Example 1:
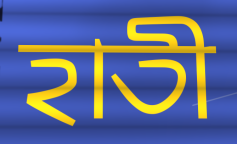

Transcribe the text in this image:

হাতী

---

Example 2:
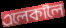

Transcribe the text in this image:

এলেকালৈ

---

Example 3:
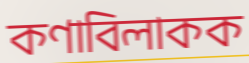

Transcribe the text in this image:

কণাবিলাকক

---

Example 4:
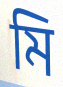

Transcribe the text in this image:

মি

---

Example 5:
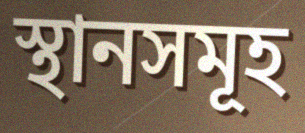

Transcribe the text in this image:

স্থানসমূহ